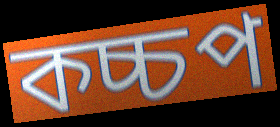
কচ্চপ